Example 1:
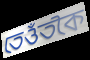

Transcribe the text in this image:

তেওঁতকৈ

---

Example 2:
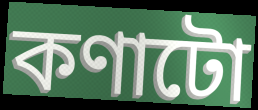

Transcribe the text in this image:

কণাটো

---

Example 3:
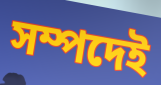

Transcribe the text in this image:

সম্পদেই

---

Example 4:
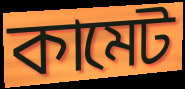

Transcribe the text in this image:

কামেট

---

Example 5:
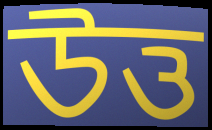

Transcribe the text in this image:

উত্ত